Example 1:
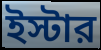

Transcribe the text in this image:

ইস্টার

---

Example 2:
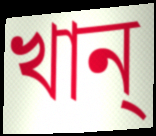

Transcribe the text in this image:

খান্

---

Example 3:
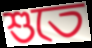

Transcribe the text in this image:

শুতে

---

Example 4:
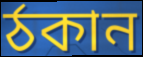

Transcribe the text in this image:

ঠকান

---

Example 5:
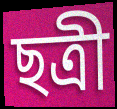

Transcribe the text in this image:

ছত্রী